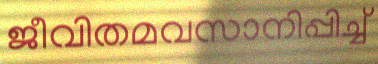
ജീവിതമവസാനിപ്പിച്ച്